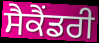
ਸੈਕੈਂਡਰੀ